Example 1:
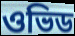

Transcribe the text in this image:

ওভিড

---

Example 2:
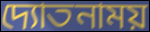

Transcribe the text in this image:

দ্যোতনাময়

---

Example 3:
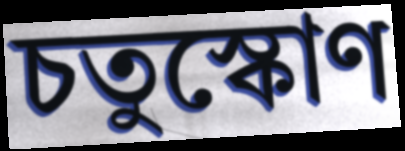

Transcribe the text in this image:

চতুস্কোণ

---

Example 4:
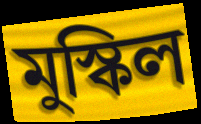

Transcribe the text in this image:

মুস্কিল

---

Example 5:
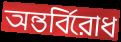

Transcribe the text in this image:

অন্তর্বিরোধ